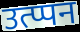
उत्प्पन